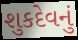
શુકદેવનું